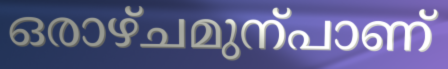
ഒരാഴ്ചമുന്പാണ്